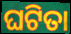
ଘଟିତା